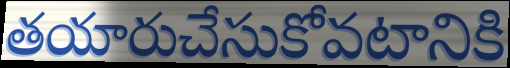
తయారుచేసుకోవటానికి